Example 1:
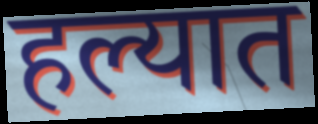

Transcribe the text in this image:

हल्यात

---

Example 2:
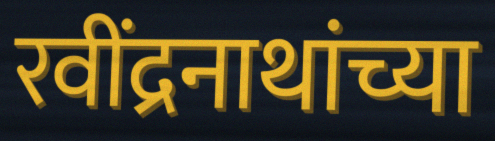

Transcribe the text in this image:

रवींद्रनाथांच्या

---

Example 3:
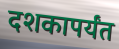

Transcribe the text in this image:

दशकापर्यंत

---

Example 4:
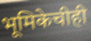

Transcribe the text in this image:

भूमिकेचीही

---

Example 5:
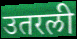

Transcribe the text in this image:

उतरली